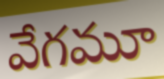
వేగమూ